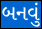
બનવું